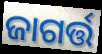
ଜାଗର୍ତ୍ତ